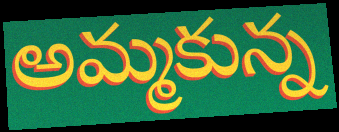
అమ్మకున్న